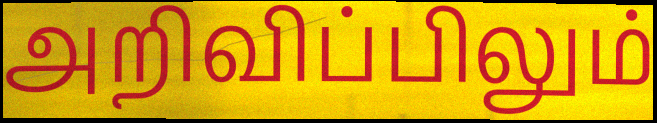
அறிவிப்பிலும்